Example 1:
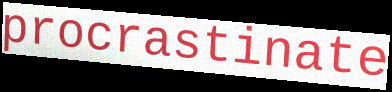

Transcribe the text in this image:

procrastinate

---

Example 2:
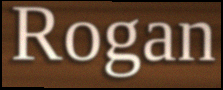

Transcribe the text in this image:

Rogan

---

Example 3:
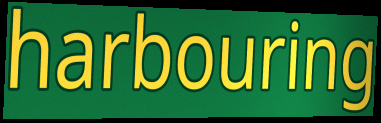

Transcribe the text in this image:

harbouring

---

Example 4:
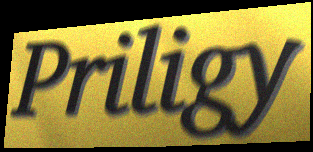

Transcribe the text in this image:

Priligy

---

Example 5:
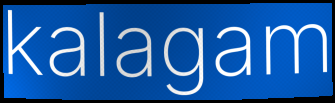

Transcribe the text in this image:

kalagam